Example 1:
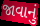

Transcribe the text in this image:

જાવાનું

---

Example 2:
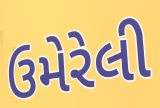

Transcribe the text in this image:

ઉમેરેલી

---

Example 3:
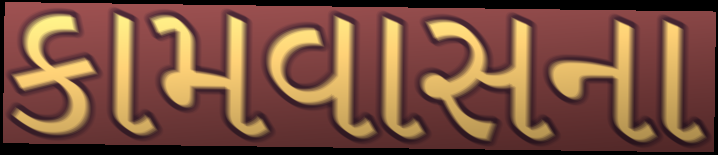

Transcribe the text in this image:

કામવાસના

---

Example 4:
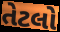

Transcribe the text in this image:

તેટલો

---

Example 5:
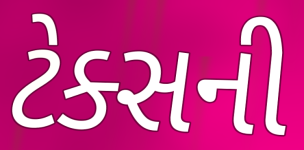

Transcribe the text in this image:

ટેક્સની